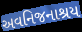
અવનિજનાશ્રય